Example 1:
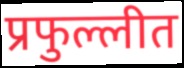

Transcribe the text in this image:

प्रफुल्लीत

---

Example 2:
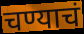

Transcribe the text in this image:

चण्याचं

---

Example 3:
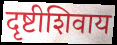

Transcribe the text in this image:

दृष्टीशिवाय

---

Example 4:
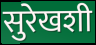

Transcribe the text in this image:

सुरेखशी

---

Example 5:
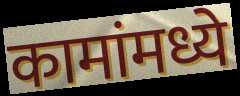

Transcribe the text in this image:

कामांमध्ये